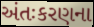
અંતઃકરણના